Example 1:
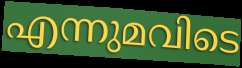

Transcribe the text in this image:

എന്നുമവിടെ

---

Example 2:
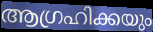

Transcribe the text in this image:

ആഗ്രഹിക്കയും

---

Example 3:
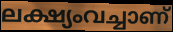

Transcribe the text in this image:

ലക്ഷ്യംവച്ചാണ്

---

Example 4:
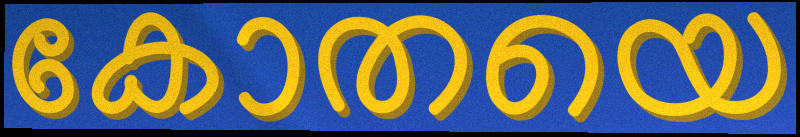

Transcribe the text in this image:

കോതയെ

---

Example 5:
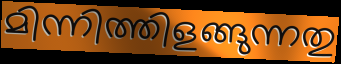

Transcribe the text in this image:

മിന്നിത്തിളങ്ങുന്നതു